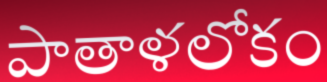
పాతాళలోకం